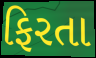
ફિરતા